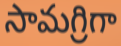
సామగ్రిగా